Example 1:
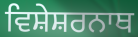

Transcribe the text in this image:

ਵਿਸ਼ੇਸ਼ਰਨਾਥ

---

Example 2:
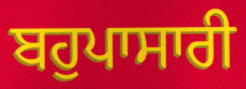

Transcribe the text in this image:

ਬਹੁਪਾਸਾਰੀ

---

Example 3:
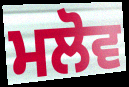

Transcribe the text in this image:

ਮਲੋਵ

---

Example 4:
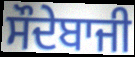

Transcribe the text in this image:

ਸੌਦੇਬਾਜੀ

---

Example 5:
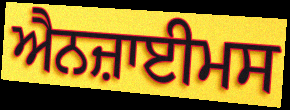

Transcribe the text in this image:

ਐਨਜ਼ਾਈਮਸ